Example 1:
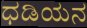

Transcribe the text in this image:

ಧಡಿಯನ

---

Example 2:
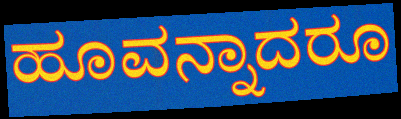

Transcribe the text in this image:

ಹೂವನ್ನಾದರೂ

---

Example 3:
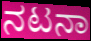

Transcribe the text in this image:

ನಟನಾ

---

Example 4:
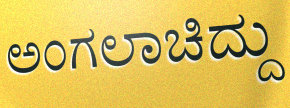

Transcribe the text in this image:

ಅಂಗಲಾಚಿದ್ದು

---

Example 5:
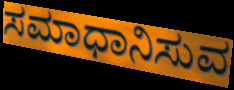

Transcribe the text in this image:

ಸಮಾಧಾನಿಸುವ